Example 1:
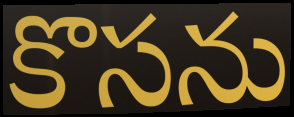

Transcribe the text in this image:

కొసను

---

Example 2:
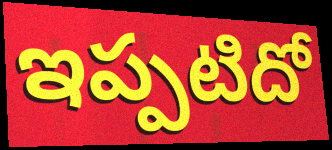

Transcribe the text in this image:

ఇప్పటిదో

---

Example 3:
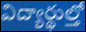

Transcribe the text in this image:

విద్యార్థుల్తో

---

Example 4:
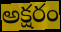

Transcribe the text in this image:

అక్షరం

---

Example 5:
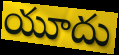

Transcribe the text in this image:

యూదు